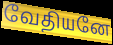
வேதியனே